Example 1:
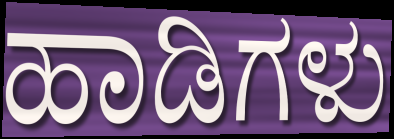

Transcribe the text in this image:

ಹಾಡಿಗಳು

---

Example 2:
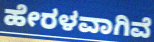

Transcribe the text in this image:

ಹೇರಳವಾಗಿವೆ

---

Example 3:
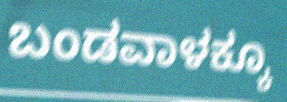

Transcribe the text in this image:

ಬಂಡವಾಳಕ್ಕೂ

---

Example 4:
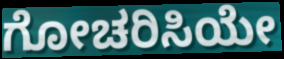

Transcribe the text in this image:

ಗೋಚರಿಸಿಯೇ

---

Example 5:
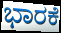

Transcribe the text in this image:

ಭಾರಕೆ